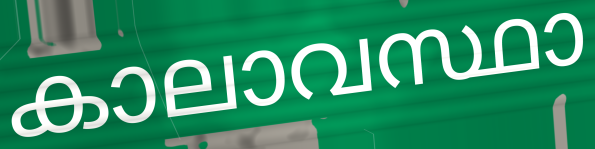
കാലാവസ്ഥാ